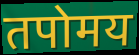
तपोमय